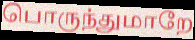
பொருந்துமாறே